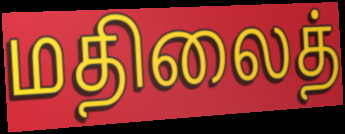
மதிலைத்